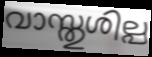
വാസ്തുശില്പ